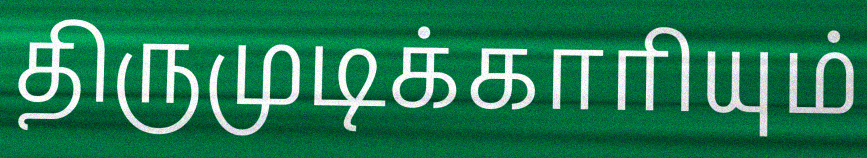
திருமுடிக்காரியும்